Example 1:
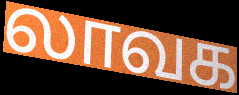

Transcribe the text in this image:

லாவக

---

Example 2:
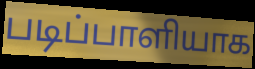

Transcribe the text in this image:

படிப்பாளியாக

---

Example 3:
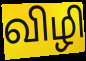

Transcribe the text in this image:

விழி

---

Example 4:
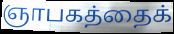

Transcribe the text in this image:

ஞாபகத்தைக்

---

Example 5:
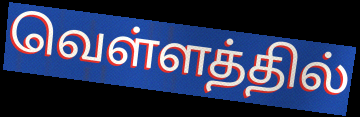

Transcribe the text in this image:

வெள்ளத்தில்